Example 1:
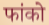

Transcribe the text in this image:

फांको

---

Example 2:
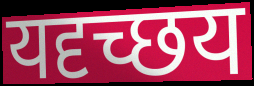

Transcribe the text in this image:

यदृच्छय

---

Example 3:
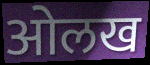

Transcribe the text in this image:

ओलख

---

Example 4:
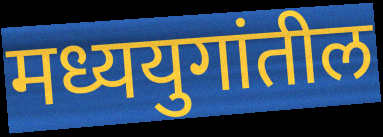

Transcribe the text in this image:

मध्ययुगांतील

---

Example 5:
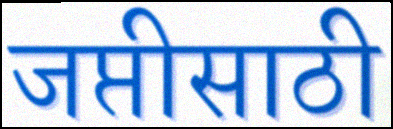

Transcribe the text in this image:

जप्तीसाठी